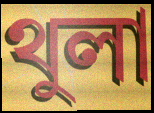
থুলা